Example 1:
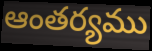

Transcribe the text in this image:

ఆంతర్యము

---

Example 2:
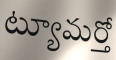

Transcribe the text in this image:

ట్యూమర్తో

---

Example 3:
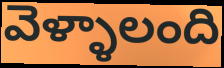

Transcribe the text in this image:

వెళ్ళాలంది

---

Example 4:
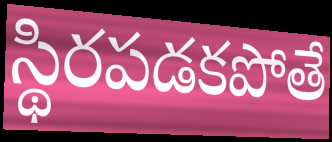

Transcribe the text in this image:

స్థిరపడకపోతే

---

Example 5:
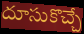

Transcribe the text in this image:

దూసుకొచ్చే